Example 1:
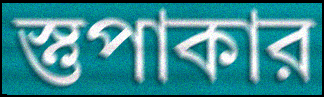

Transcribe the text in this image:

স্তুপাকার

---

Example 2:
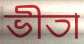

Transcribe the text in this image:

ভীতা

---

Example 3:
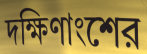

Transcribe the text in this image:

দক্ষিণাংশের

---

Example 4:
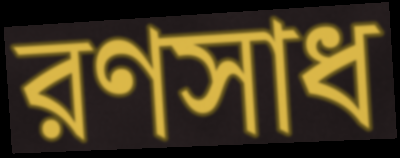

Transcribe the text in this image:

রণসাধ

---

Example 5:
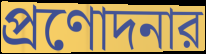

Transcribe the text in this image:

প্রণোদনার